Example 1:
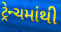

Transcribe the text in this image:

ટ્રેન્ચમાંથી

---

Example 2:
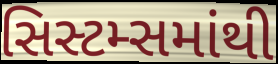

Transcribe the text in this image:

સિસ્ટમ્સમાંથી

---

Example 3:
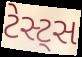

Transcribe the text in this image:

ટેસ્ટ્સ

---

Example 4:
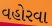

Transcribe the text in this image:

વહોરવા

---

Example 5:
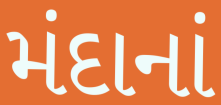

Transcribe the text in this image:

મંદાનાં